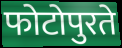
फोटोपुरते